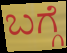
ಬಗ್ಗೆ